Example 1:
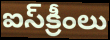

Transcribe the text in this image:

ఐస్‌క్రీంలు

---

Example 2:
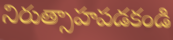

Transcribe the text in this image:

నిరుత్సాహపడకండి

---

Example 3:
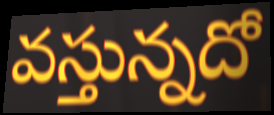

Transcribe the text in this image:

వస్తున్నదో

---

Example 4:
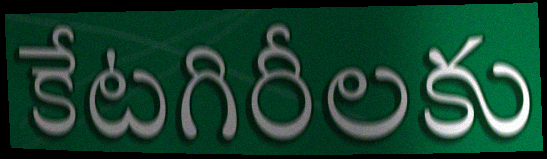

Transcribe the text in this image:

కేటగిరీలకు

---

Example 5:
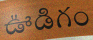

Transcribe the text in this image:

ఊడిగం